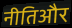
नीतिऔर